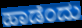
ಹಾಡೆಂದು